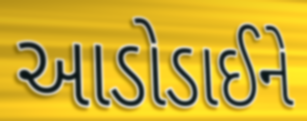
આડોડાઈને